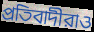
প্রতিবাদীরাও